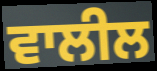
ਵਾਲੀਲ